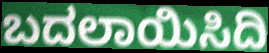
ಬದಲಾಯಿಸಿದಿ